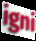
igni